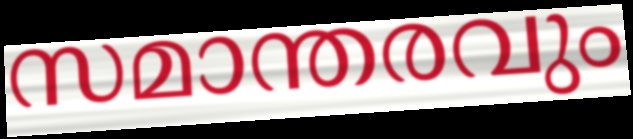
സമാന്തരവും